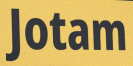
Jotam